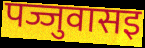
पज्जुवासइ